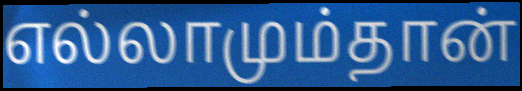
எல்லாமும்தான்